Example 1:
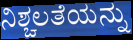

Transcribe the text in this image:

ನಿಶ್ಚಲತೆಯನ್ನು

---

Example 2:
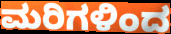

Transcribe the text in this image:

ಮರಿಗಳಿಂದ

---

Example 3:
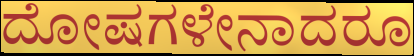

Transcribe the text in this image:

ದೋಷಗಳೇನಾದರೂ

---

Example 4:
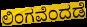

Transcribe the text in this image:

ಲಿಂಗವೆಂದಡೆ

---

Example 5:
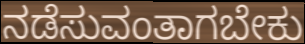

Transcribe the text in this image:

ನಡೆಸುವಂತಾಗಬೇಕು